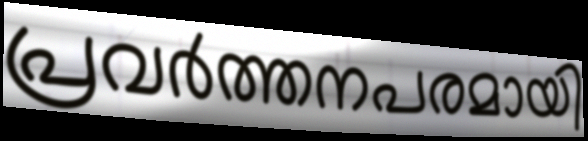
പ്രവർത്തനപരമായി